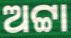
ଅଟ୍ଟା